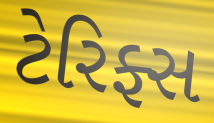
ટેરિફ્સ